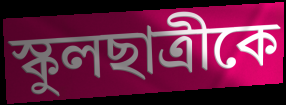
স্কুলছাত্রীকে